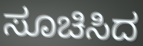
ಸೂಚಿಸಿದ